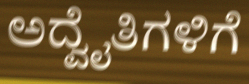
ಅದ್ವೈತಿಗಳಿಗೆ